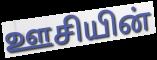
ஊசியின்